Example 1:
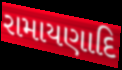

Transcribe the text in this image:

રામાયણાદિ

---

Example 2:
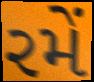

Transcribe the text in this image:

રમેં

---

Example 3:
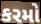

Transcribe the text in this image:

કરમો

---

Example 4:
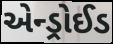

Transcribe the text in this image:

એન્ડ્રોઈડ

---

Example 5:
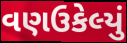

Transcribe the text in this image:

વણઉકેલ્યું